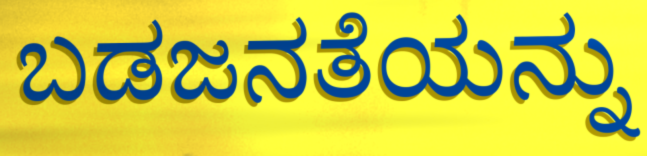
ಬಡಜನತೆಯನ್ನು